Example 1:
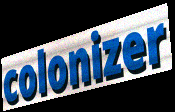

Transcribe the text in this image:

colonizer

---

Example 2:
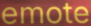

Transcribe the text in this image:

emote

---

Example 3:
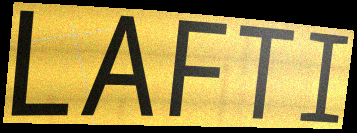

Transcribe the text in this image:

LAFTI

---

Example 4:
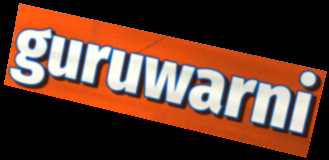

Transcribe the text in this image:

guruwarni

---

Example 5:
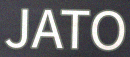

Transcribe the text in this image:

JATO